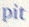
pit